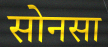
सोनसा